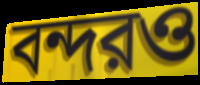
বন্দরও